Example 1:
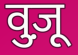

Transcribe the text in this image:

वुज़ू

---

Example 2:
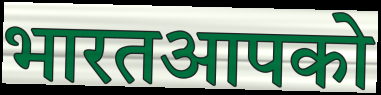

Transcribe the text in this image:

भारतआपको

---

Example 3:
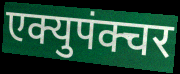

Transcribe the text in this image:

एक्युपंक्चर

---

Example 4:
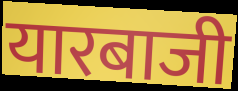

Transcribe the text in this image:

यारबाजी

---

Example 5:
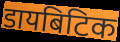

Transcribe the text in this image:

डायबिटिक